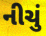
નીચું